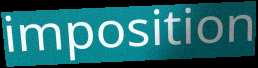
imposition